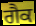
ਗੈਕ